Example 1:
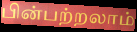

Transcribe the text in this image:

பின்பற்றலாம்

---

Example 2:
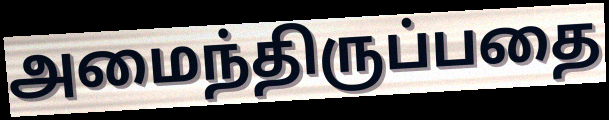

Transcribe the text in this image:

அமைந்திருப்பதை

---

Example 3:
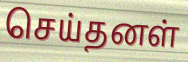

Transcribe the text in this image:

செய்தனள்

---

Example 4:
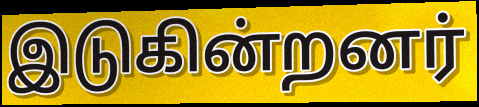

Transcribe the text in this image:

இடுகின்றனர்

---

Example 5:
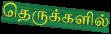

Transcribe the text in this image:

தெருக்களில்